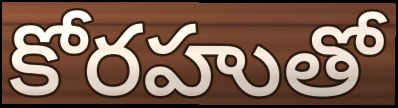
కోరహుతో